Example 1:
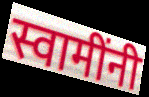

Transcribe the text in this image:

स्वामींनी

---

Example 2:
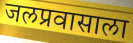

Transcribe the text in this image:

जलप्रवासाला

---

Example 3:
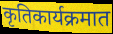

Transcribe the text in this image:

कृतिकार्यक्रमात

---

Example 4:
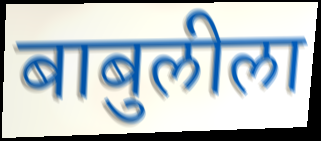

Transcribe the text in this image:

बाबुलीला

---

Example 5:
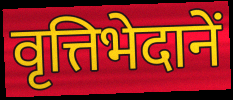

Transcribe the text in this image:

वृत्तिभेदानें